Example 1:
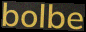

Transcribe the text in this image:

bolbe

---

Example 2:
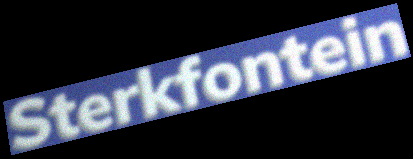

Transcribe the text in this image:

Sterkfontein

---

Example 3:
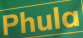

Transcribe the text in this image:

Phula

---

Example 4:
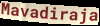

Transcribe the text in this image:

Mavadiraja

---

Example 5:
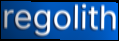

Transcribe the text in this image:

regolith